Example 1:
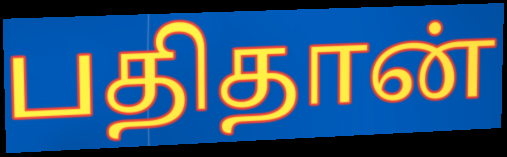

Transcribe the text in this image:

பதிதான்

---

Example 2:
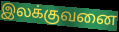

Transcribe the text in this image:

இலக்குவனை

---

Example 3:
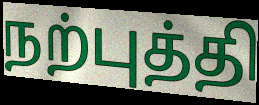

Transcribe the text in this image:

நற்புத்தி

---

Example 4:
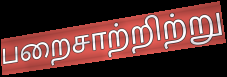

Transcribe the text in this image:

பறைசாற்றிற்று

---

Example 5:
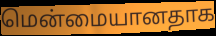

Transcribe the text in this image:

மென்மையானதாக